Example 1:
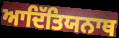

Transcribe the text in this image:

ਆਦਿੱਤਿਯਨਾਥ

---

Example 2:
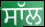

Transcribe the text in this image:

ਸਾੱਲ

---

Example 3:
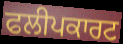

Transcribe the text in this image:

ਫਲੀਪਕਾਰਟ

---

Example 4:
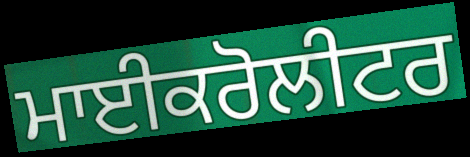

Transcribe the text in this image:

ਮਾਈਕਰੋਲੀਟਰ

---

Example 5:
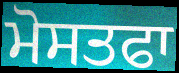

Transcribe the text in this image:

ਮੋਸਤਫਾ